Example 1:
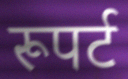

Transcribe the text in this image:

रूपर्ट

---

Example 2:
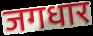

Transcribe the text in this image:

जगधार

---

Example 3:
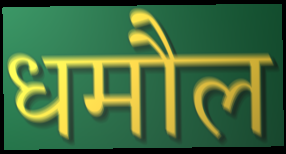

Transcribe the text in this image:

धमौल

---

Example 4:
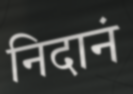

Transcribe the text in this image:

निदानं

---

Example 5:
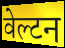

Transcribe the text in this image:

वेल्टन